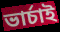
ভাৰ্চাই